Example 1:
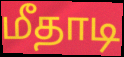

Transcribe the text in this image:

மீதாடி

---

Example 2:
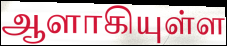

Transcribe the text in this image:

ஆளாகியுள்ள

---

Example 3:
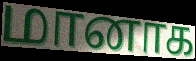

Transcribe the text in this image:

மானாக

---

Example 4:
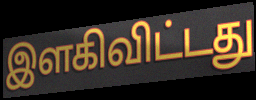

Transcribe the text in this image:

இளகிவிட்டது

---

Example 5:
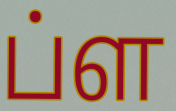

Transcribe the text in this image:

ப்ள